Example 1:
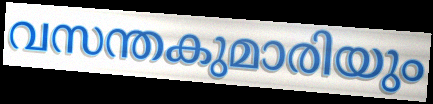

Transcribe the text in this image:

വസന്തകുമാരിയും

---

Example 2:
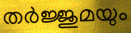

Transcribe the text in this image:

തർജ്ജുമയും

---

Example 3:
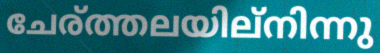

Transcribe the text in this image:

ചേര്ത്തലയില്നിന്നു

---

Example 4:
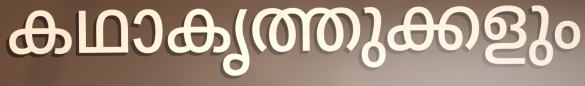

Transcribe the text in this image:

കഥാകൃത്തുക്കളും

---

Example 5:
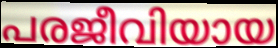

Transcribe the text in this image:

പരജീവിയായ